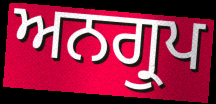
ਅਨਗ੍ਰੁਪ